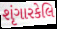
શૃંગારકેલિ